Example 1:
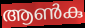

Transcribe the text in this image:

ആൺകു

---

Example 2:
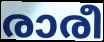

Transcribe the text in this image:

രാരീ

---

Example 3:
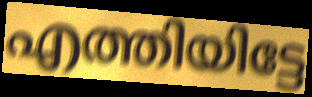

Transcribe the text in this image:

എത്തിയിട്ടേ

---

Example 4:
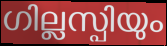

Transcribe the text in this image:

ഗില്ലസ്പിയും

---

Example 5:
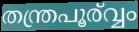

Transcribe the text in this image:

തന്ത്രപൂര്വ്വം